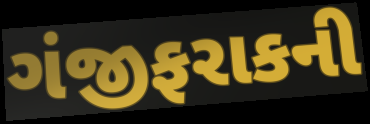
ગંજીફરાકની